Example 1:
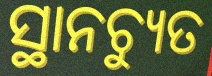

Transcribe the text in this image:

ସ୍ଥାନଚ୍ୟୁତ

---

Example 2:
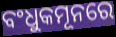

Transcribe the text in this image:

ବଂଧୁକମୂନରେ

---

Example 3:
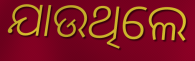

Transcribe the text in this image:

ଯାଉଥିଲେ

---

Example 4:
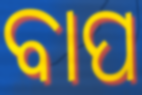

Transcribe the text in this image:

ବାପ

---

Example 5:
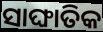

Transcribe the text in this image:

ସାଙ୍ଘାତିକ